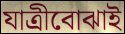
যাত্রীবোঝাই